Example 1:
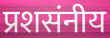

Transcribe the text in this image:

प्रशसंनीय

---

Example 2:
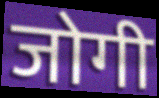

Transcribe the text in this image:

जोगी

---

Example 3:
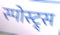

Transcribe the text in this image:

स्पोस्ट्र्स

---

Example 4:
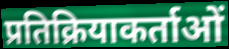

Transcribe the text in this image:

प्रतिक्रियाकर्ताओं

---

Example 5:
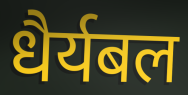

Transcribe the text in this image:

धैर्यबल